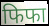
फिफा